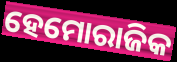
ହେମୋରାଜିକ